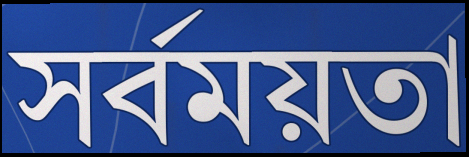
সর্বময়তা